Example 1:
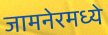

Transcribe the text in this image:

जामनेरमध्ये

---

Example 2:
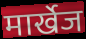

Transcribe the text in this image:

मार्खेज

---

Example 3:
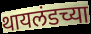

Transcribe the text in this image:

थायलंडच्या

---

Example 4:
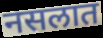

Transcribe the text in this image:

नसलात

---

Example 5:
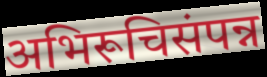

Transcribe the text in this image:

अभिरूचिसंपन्न